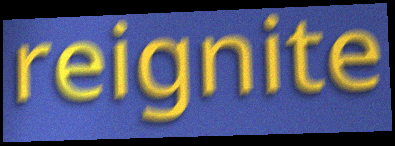
reignite